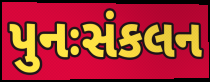
પુનઃસંકલન